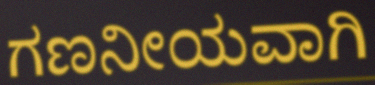
ಗಣನೀಯವಾಗಿ